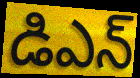
డిఎన్